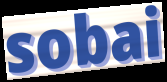
sobai